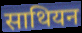
साथियन